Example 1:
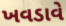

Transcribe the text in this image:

ખવડાવે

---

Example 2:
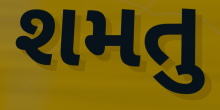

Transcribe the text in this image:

શમતુ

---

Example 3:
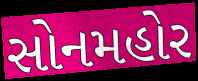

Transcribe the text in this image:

સોનમહોર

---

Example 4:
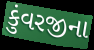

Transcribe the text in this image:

કુંવરજીના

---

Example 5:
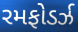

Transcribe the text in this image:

રમફોડર્ઝ